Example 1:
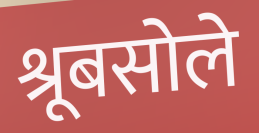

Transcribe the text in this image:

श्रूबसोले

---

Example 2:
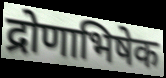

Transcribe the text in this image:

द्रोणाभिषेक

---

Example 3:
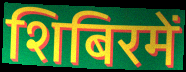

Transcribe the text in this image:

शिबिरमें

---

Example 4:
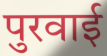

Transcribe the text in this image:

पुरवाई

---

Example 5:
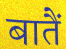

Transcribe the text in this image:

बातैं